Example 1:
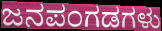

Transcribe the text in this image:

ಜನಪಂಗಡಗಳು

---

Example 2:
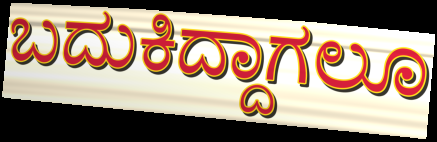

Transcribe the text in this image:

ಬದುಕಿದ್ದಾಗಲೂ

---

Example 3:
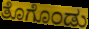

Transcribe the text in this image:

ತೊಗೊಂಡು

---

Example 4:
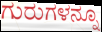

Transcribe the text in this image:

ಗುರುಗಳನ್ನೂ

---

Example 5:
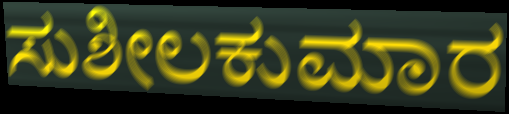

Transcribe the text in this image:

ಸುಶೀಲಕುಮಾರ